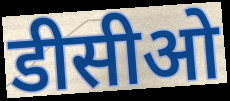
डीसीओ